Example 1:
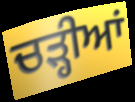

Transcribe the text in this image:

ਚੜ੍ਹੀਆਂ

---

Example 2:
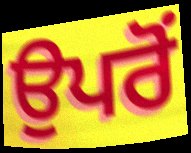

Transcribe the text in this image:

ਉਪਰੋਂ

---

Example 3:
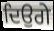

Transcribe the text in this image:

ਦਿਉਗੇ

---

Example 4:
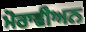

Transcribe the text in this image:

ਮੋਰਾਵੀਅਨ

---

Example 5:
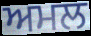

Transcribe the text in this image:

ਅਮਲ